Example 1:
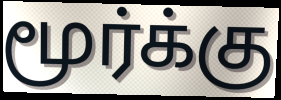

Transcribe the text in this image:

மூர்க்கு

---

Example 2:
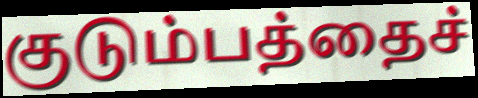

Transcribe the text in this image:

குடும்பத்தைச்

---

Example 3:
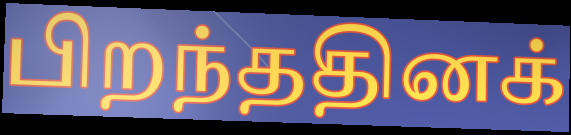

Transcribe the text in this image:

பிறந்ததினக்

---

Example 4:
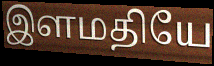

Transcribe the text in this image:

இளமதியே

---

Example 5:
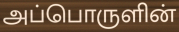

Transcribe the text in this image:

அப்பொருளின்